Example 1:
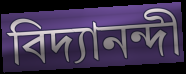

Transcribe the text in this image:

বিদ্যানন্দী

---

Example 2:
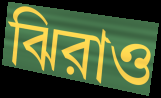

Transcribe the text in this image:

ঝিরাও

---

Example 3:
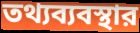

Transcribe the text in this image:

তথ্যব্যবস্থার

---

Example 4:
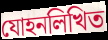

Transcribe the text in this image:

যোহনলিখিত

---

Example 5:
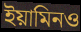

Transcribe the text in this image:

ইয়ামিনও